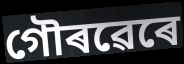
গৌৰৱেৰে